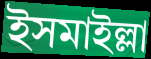
ইসমাইল্লা